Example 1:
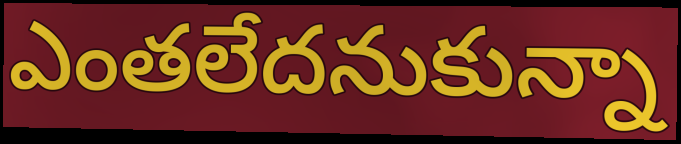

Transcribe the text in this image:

ఎంతలేదనుకున్నా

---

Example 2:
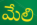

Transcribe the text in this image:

మేలి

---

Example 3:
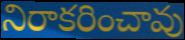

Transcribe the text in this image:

నిరాకరించావు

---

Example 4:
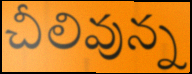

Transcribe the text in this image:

చీలివున్న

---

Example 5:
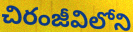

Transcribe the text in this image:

చిరంజీవిలోని